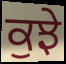
ਕੁਝੇ